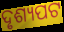
ଦୃଶ୍ୟପଟ